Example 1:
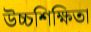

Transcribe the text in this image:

উচ্চশিক্ষিতা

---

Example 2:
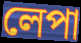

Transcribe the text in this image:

লেপা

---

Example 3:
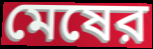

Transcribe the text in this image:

মেষের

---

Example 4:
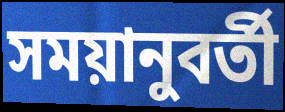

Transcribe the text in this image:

সময়ানুবর্তী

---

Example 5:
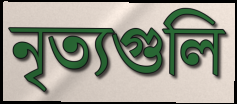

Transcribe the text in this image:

নৃত্যগুলি